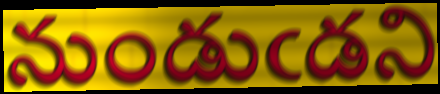
నుండుఁడని